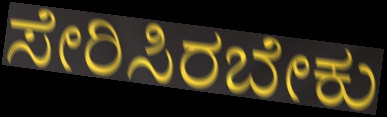
ಸೇರಿಸಿರಬೇಕು